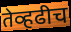
तेव्हढीच